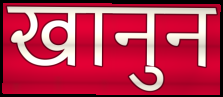
खानुन